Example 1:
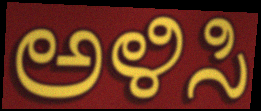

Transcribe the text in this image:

ಅಳಿಸಿ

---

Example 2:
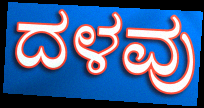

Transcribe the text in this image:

ದಳವು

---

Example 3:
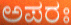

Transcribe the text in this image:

ಅಪರಃ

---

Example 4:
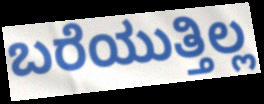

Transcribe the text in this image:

ಬರೆಯುತ್ತಿಲ್ಲ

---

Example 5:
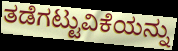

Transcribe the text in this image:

ತಡೆಗಟ್ಟುವಿಕೆಯನ್ನು